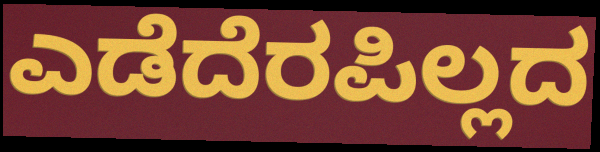
ಎಡೆದೆರಪಿಲ್ಲದ